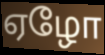
ஏழோ